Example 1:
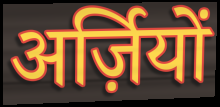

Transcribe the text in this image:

अर्ज़ियों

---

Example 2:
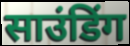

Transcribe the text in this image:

साउंडिंग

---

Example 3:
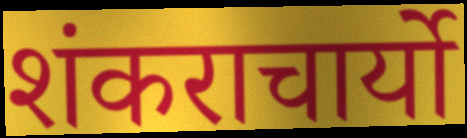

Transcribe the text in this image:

शंकराचार्यो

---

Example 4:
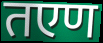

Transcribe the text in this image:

तएण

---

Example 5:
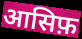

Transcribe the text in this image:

आसिफ़